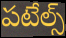
పటేల్స్